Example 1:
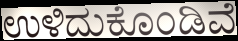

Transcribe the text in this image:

ಉಳಿದುಕೊಂಡಿವೆ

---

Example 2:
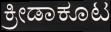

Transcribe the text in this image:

ಕ್ರೀಡಾಕೂಟ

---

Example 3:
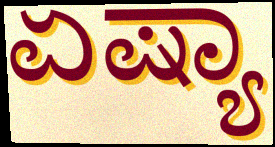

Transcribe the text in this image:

ಏಷ್ಯಾ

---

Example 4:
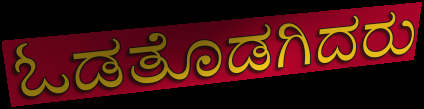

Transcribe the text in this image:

ಓಡತೊಡಗಿದರು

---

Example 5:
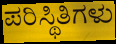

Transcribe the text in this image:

ಪರಿಸ್ಥಿತಿಗಳು